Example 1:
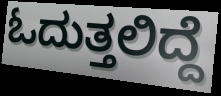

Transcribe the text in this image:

ಓದುತ್ತಲಿದ್ದೆ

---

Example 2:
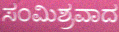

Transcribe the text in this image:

ಸಂಮಿಶ್ರವಾದ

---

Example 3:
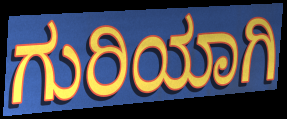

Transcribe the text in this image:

ಗುರಿಯಾಗಿ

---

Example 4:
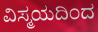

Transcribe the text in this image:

ವಿಸ್ಮಯದಿಂದ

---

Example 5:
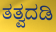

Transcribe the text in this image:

ತತ್ವದಡಿ